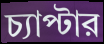
চ্যাপ্টার